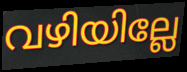
വഴിയില്ലേ